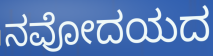
ನವೋದಯದ